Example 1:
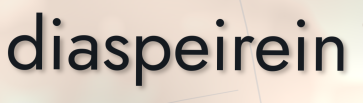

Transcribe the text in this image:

diaspeirein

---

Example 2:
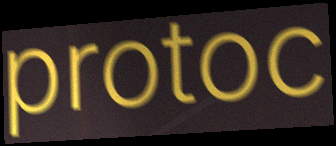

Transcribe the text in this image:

protoc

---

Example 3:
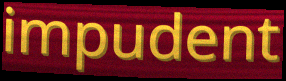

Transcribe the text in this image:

impudent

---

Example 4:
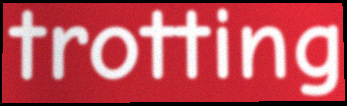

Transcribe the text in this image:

trotting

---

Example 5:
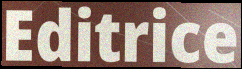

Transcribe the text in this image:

Editrice